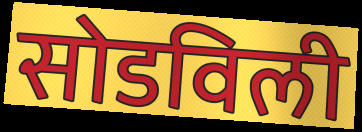
सोडविली